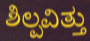
ಶಿಲ್ಪವಿತ್ತು